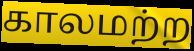
காலமற்ற